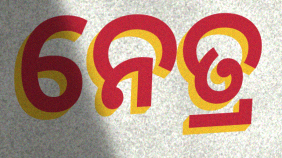
ନେତ୍ର